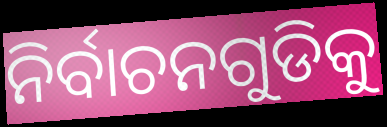
ନିର୍ବାଚନଗୁଡିକୁ